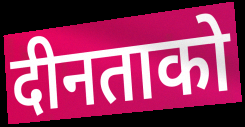
दीनताको